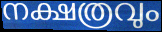
നക്ഷത്രവും